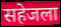
सहेजला